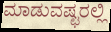
ಮಾಡುವಷ್ಟರಲ್ಲಿ